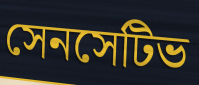
সেনসেটিভ